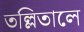
তল্লিতালে